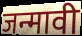
जन्मावी